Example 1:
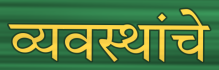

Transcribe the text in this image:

व्यवस्थांचे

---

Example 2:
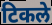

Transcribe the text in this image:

टिकले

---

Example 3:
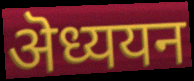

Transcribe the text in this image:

ऄध्ययन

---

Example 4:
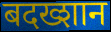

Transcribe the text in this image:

बदख्शान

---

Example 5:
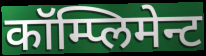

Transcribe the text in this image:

कॉम्प्लिमेन्ट